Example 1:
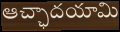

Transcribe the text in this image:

ఆచ్ఛాదయామి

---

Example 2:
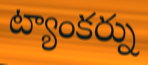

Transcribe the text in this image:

ట్యాంకర్ను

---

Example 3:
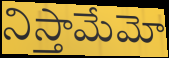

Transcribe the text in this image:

నిస్తామేమో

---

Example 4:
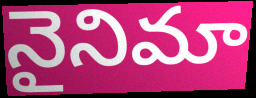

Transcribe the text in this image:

నైనిమా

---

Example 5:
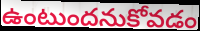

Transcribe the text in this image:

ఉంటుందనుకోవడం